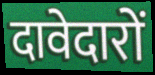
दावेदारों